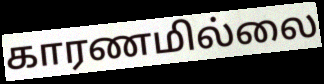
காரணமில்லை